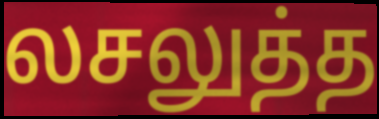
லசலுத்த